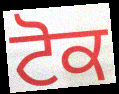
ਟੋਕ